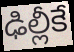
ఢిల్లీకే